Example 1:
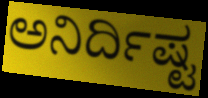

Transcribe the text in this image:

ಅನಿರ್ದಿಷ್ಟ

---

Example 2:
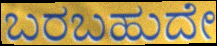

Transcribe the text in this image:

ಬರಬಹುದೇ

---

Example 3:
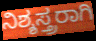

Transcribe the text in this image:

ನಿಶ್ಶಸ್ತ್ರರಾಗಿ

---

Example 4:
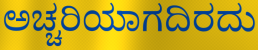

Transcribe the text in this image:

ಅಚ್ಚರಿಯಾಗದಿರದು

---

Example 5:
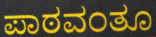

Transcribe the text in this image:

ಪಾಠವಂತೂ